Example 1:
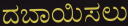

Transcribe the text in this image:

ದಬಾಯಿಸಲು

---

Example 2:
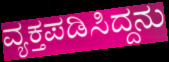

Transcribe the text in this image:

ವ್ಯಕ್ತಪಡಿಸಿದ್ದನು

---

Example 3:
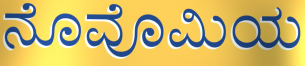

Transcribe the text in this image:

ನೊವೊಮಿಯ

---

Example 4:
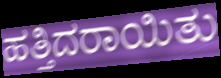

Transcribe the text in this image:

ಹತ್ತಿದರಾಯಿತು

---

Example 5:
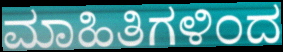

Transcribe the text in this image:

ಮಾಹಿತಿಗಳಿಂದ